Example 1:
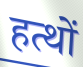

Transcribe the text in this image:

हत्थों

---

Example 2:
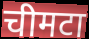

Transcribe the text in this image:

चीमटा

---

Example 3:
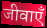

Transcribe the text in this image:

जीवाएँ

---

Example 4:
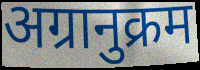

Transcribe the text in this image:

अग्रानुक्रम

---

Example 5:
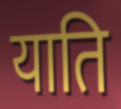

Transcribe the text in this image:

याति